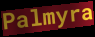
Palmyra